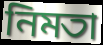
নিমতা